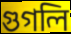
গুগলি